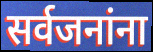
सर्वजनांना